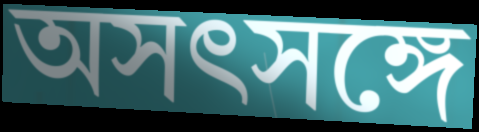
অসৎসঙ্গে